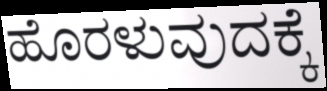
ಹೊರಳುವುದಕ್ಕೆ